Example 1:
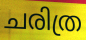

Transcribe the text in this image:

ചരിത്ര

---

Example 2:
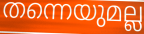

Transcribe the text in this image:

തന്നെയുമല്ല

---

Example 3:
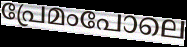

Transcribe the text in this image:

പ്രേമംപോലെ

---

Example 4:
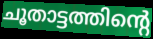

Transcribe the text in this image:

ചൂതാട്ടത്തിന്റെ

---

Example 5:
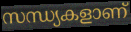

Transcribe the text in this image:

സന്ധ്യകളാണ്